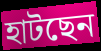
হাটছেন